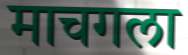
माचगला